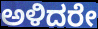
ಅಳಿದರೇ